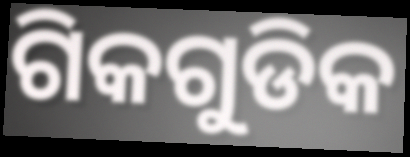
ଗିକଗୁଡିକ